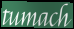
tumach